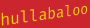
hullabaloo